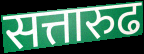
सत्तारुढ